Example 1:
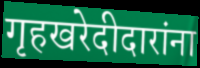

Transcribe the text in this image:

गृहखरेदीदारांना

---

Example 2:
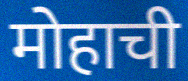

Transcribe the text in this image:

मोहाची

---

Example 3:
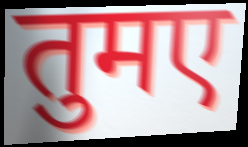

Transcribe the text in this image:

तुमए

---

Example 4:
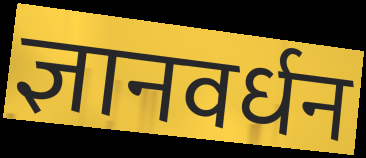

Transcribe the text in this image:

ज्ञानवर्धन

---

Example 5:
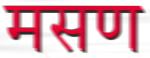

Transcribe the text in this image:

मसण